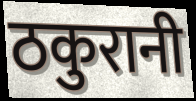
ठकुरानी